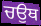
ਚਉਥ